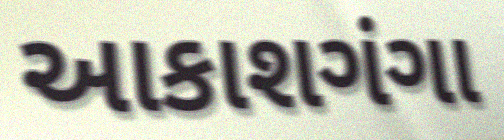
આકાશગંગા